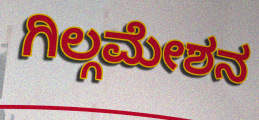
ಗಿಲ್ಗಮೇಶನ